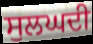
ਸੁਲਘਦੀ